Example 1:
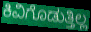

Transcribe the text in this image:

ಕಿವಿಗೊಡುತ್ತಿಲ್ಲ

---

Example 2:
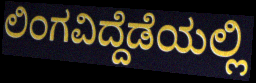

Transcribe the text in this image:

ಲಿಂಗವಿದ್ದೆಡೆಯಲ್ಲಿ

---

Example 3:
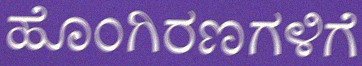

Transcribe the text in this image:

ಹೊಂಗಿರಣಗಳಿಗೆ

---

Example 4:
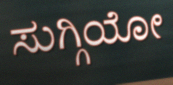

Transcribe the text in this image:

ಸುಗ್ಗಿಯೋ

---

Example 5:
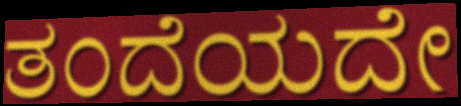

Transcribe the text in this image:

ತಂದೆಯದೇ